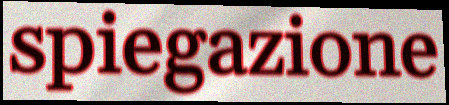
spiegazione